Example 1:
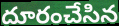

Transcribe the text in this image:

దూరంచేసిన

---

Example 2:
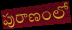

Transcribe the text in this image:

పురాణంలో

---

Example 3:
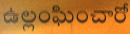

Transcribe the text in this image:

ఉల్లంఘించారో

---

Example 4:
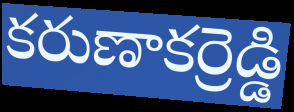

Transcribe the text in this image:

కరుణాకర్రెడ్డి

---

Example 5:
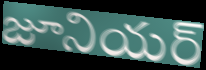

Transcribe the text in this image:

జూనియర్